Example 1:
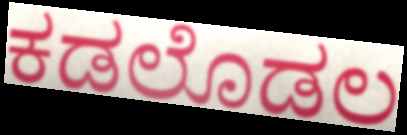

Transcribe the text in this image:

ಕಡಲೊಡಲ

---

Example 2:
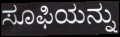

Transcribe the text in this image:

ಸೂಫಿಯನ್ನು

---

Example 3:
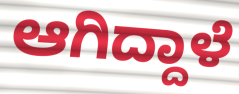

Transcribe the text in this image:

ಆಗಿದ್ದಾಳೆ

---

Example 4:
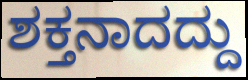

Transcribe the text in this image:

ಶಕ್ತನಾದದ್ದು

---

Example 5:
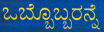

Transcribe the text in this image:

ಒಬ್ಬೊಬ್ಬರನ್ನೆ